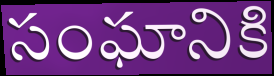
సంఘానికి